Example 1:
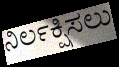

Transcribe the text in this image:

ನಿರ್ಲಕ್ಷಿಸಲು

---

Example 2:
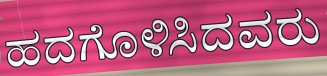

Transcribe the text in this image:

ಹದಗೊಳಿಸಿದವರು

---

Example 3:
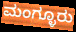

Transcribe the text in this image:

ಮಂಗ್ಳೂರು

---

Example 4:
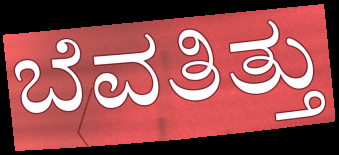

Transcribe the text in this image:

ಬೆವತಿತ್ತು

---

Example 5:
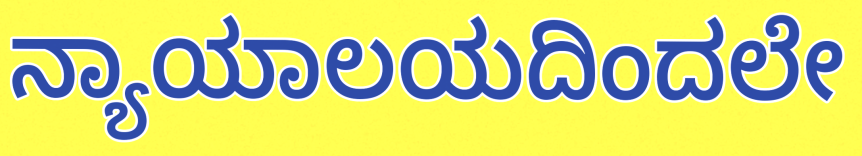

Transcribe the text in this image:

ನ್ಯಾಯಾಲಯದಿಂದಲೇ